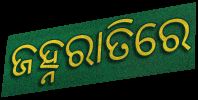
ଜହ୍ନରାତିରେ